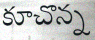
కూచొన్న